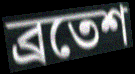
ব্রতেশ